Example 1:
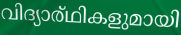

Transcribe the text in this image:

വിദ്യാര്ഥികളുമായി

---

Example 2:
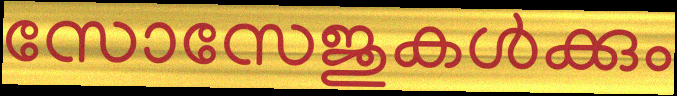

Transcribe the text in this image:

സോസേജുകൾക്കും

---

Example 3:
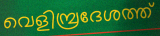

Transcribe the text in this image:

വെളിമ്പ്രദേശത്ത്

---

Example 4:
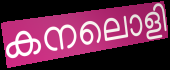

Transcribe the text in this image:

കനലൊളി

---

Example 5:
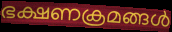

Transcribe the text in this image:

ഭക്ഷണക്രമങ്ങൾ